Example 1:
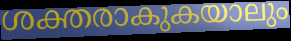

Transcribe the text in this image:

ശക്തരാകുകയാലും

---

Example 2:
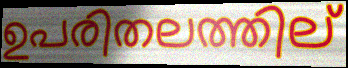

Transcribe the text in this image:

ഉപരിതലത്തില്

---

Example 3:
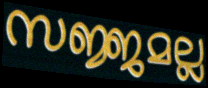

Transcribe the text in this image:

സജ്ജമല്ല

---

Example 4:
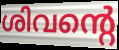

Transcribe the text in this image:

ശിവന്റെ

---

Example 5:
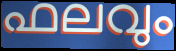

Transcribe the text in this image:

ഫലവും